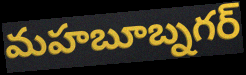
మహబూబ్నగర్